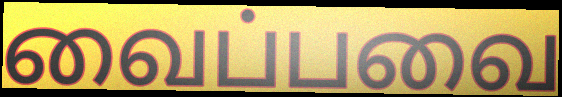
வைப்பவை